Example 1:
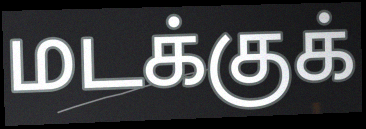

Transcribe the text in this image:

மடக்குக்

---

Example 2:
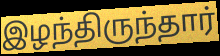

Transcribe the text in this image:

இழந்திருந்தார்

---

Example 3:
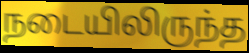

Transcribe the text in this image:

நடையிலிருந்த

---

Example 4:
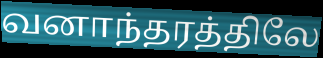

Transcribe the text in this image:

வனாந்தரத்திலே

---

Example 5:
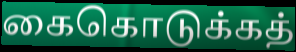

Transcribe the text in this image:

கைகொடுக்கத்